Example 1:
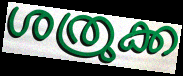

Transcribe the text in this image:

ശത്രുക്ക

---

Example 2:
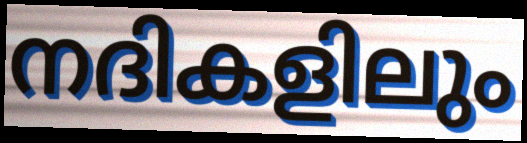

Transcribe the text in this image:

നദികളിലും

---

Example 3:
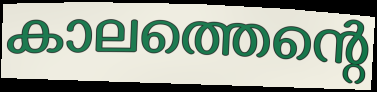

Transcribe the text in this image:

കാലത്തെന്റെ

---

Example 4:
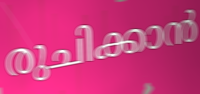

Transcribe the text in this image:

രുചിക്കാൻ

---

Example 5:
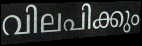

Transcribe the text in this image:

വിലപിക്കും